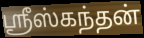
ஸ்ரீஸ்கந்தன்